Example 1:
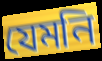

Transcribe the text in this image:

যেমনি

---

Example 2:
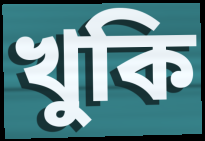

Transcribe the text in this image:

খুকি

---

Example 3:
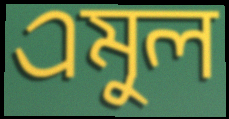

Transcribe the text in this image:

এমুল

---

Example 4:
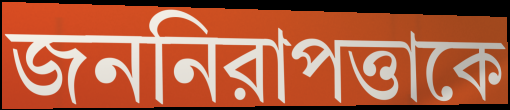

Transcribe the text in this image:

জননিরাপত্তাকে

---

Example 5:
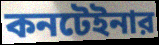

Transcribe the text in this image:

কনটেইনার